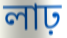
লাঢ়